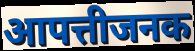
आपत्तीजनक